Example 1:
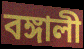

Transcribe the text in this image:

বঙ্গালী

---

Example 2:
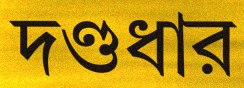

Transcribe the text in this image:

দণ্ডধার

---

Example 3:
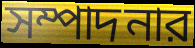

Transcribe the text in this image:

সম্পাদনার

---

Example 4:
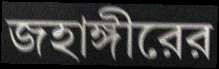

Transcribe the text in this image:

জহাঙ্গীরের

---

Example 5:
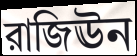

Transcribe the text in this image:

রাজিঊন